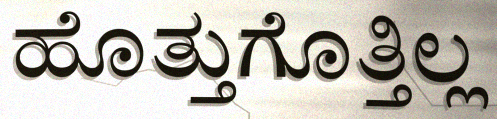
ಹೊತ್ತುಗೊತ್ತಿಲ್ಲ